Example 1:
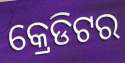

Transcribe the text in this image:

କ୍ରେଡିଟର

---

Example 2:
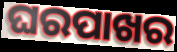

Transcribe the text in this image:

ଘରପାଖର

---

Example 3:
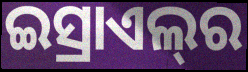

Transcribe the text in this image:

ଇସ୍ରାଏଲ୍‌ର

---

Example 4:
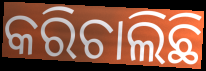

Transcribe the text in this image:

କରିଚାଲିଛି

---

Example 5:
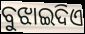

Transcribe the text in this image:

ବୁଝାଇଦିଏ